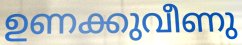
ഉണക്കുവീണു